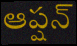
ఆప్షన్